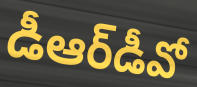
డీఆర్‌డీవో